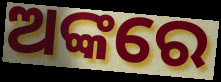
ଅଙ୍କରେ